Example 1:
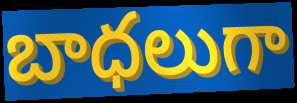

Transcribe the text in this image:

బాధలుగా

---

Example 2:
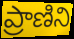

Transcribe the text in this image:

ప్రాణిని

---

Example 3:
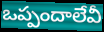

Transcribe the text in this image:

ఒప్పందాలేవీ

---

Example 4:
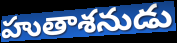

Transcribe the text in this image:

హుతాశనుడు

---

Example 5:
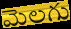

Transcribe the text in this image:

మెలగు